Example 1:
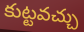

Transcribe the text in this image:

కుట్టవచ్చు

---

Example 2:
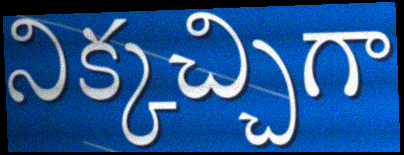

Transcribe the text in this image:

నిక్కచ్చిగా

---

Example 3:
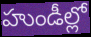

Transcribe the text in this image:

హుండీల్లో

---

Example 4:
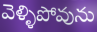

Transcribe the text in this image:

వెళ్ళిపోవును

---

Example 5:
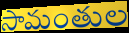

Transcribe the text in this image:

సామంతుల